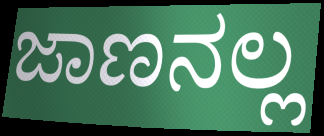
ಜಾಣನಲ್ಲ